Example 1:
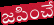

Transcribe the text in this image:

జపించే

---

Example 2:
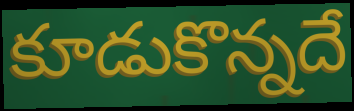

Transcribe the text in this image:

కూడుకొన్నదే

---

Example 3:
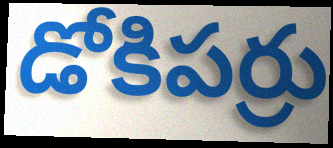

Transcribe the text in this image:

డోకిపర్రు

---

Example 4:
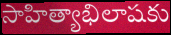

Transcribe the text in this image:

సాహిత్యాభిలాషకు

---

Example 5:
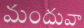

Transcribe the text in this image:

మందువా